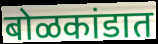
बोळकांडात